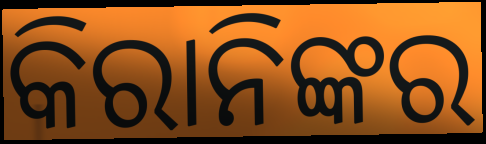
କିରାନିଙ୍କର